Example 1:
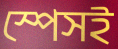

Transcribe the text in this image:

স্পেসই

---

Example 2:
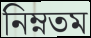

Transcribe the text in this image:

নিম্নতম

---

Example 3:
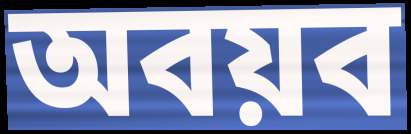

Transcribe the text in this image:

অবয়ব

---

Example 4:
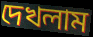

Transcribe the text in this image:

দেখলাম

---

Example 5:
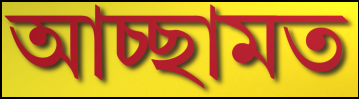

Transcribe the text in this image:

আচ্ছামত